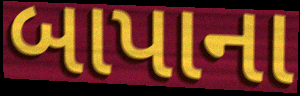
બાપાના